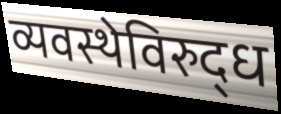
व्यवस्थेविरुद्ध